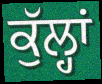
ਕੁੱਲ੍ਹਾਂ